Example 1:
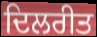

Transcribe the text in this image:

ਦਿਲਰੀਤ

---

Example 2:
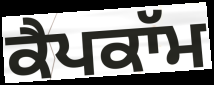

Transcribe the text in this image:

ਕੈਪਕਾੱਮ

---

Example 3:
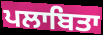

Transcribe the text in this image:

ਪਲਾਬਿਤਾ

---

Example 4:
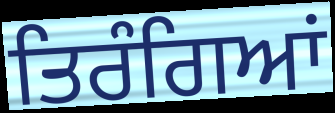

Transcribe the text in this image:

ਤਿਰੰਗਿਆਂ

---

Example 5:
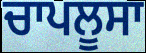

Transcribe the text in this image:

ਚਾਪਲੂਸਾ